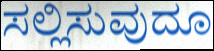
ಸಲ್ಲಿಸುವುದೂ